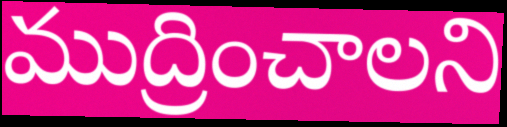
ముద్రించాలని